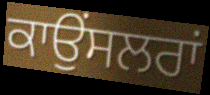
ਕਾਉਂਸਲਰਾਂ